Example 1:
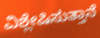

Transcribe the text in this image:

ವಿಶ್ಲೇಷಿಸುತ್ತಾನೆ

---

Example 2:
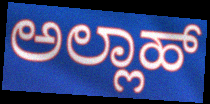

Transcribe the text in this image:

ಅಲ್ಲಾಹ್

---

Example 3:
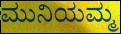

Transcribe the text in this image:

ಮುನಿಯಮ್ಮ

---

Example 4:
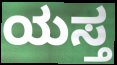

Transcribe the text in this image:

ಯಸ್ತ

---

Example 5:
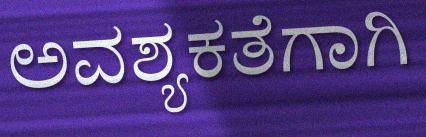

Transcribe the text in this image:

ಅವಶ್ಯಕತೆಗಾಗಿ